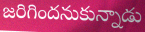
జరిగిందనుకున్నాడు